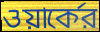
ওয়ার্কের